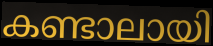
കണ്ടാലായി